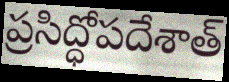
ప్రసిద్ధోపదేశాత్